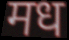
मध